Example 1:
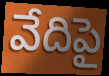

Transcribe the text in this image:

వేదిపై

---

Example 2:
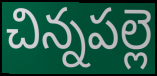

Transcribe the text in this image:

చిన్నపల్లె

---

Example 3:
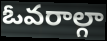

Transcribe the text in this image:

ఓవరాల్గా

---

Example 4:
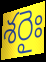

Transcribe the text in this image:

శరైః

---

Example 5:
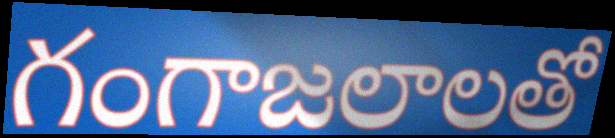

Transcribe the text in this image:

గంగాజలాలతో